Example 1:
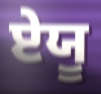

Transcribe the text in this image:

ਏਯੂ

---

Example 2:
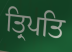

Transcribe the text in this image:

ਤ੍ਰਿਪਤਿ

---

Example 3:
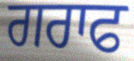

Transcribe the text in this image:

ਗਰਾਫ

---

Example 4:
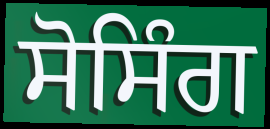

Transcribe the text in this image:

ਸੋਸਿੰਗ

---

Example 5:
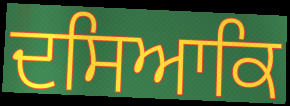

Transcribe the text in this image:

ਦਸਿਆਕਿ